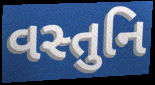
વસ્તુનિ